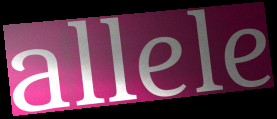
allele